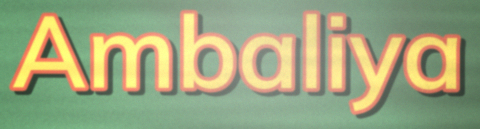
Ambaliya